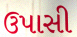
ઉપાસી